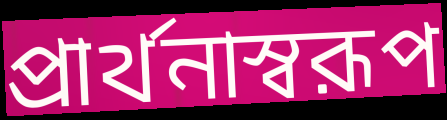
প্রার্থনাস্বরূপ